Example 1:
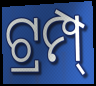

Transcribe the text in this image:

ଟ୍ରମ୍ପ୍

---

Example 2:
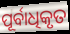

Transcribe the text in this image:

ପୂର୍ବାଧିକୃତ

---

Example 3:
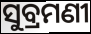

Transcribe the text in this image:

ସୁବ୍ରମଣୀ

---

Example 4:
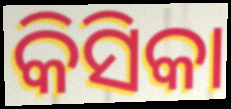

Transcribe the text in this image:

କିସିକା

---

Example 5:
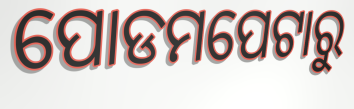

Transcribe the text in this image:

ପୋଡମପେଟାରୁ